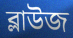
ব্লাউজ